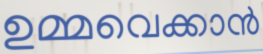
ഉമ്മവെക്കാൻ